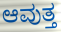
ಆವುತ್ತ